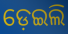
ଡ଼େଇଲି